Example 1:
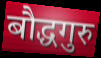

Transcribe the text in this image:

बौद्धगुरु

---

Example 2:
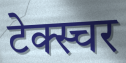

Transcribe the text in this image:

टेक्स्चर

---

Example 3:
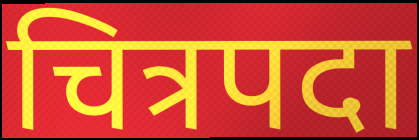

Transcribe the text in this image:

चित्रपदा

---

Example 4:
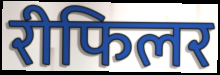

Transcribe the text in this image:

रीफिलर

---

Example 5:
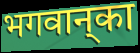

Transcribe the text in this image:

भगवान्‌का